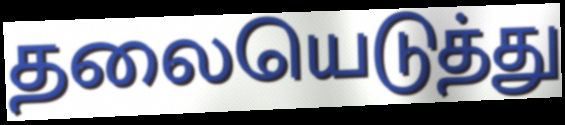
தலையெடுத்து